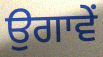
ਉਗਾਵੇਂ